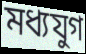
মধ্যযুগ